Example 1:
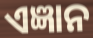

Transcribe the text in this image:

ଏଜ୍ଞାନ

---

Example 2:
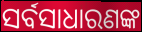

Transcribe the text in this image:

ସର୍ବସାଧାରଣଙ୍କ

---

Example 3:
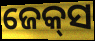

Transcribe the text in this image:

ଜେକ୍‍ସ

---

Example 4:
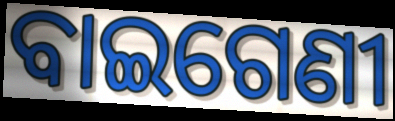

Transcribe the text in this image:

ବାଇଗେଣୀ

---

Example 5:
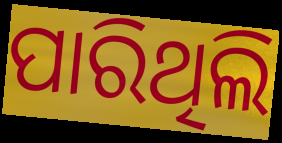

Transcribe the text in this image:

ପାରିଥିଲି